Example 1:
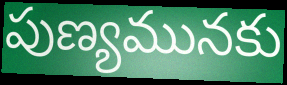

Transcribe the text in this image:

పుణ్యమునకు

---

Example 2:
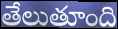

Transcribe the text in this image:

తేలుతూంది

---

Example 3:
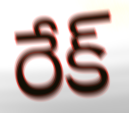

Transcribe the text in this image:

రేక్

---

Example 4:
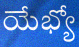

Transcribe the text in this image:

యేభ్యో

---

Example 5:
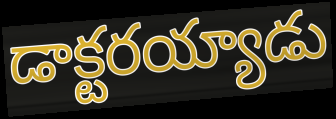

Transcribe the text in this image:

డాక్టరయ్యాడు